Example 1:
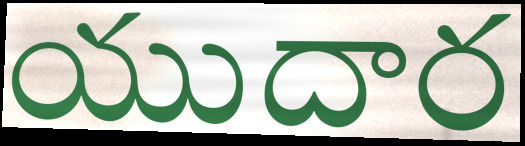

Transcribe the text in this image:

యుదార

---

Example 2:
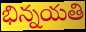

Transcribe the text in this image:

భిన్నయతి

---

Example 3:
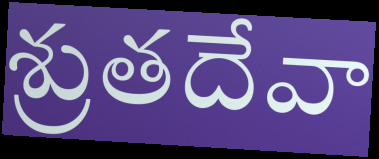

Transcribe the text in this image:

శ్రుతదేవా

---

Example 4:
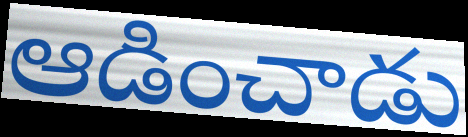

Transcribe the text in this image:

ఆడించాడు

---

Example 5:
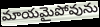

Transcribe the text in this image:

మాయమైపోవును